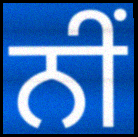
ਨੀਂ